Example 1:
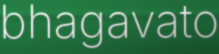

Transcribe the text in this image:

bhagavato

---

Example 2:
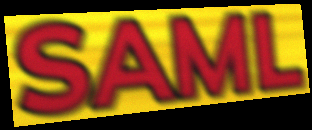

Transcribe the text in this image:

SAML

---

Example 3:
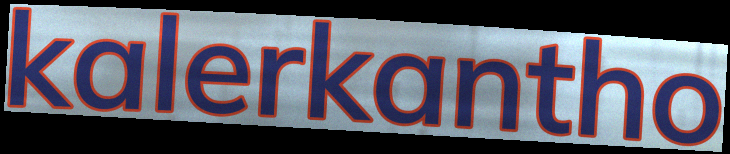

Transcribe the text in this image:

kalerkantho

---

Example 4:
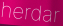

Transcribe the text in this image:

herdar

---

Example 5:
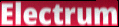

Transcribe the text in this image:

Electrum